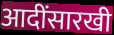
आदींसारखी